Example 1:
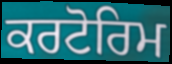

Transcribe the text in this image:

ਕਰਟੋਰਿਮ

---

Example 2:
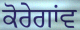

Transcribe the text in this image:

ਕੋਰੇਗਾਂਵ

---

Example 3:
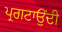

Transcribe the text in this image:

ਪ੍ਰਗਟਾਉਂਦੀ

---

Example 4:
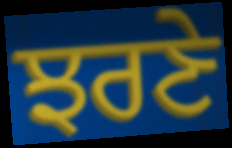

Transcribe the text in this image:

ਝਰਣੇ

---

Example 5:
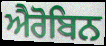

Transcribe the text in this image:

ਐਰੋਬਿਨ